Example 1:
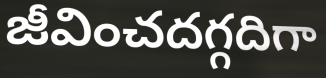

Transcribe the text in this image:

జీవించదగ్గదిగా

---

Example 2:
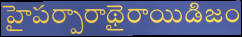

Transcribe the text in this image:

హైపర్పారాథైరాయిడిజం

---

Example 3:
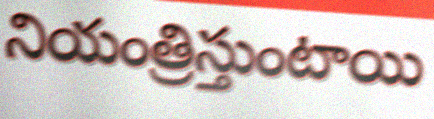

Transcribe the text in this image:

నియంత్రిస్తుంటాయి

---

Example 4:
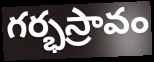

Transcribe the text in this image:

గర్భస్రావం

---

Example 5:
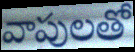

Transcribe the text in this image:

వాపులతో